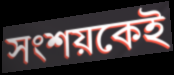
সংশয়কেই